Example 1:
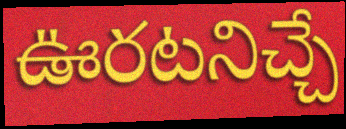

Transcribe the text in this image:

ఊరటనిచ్చే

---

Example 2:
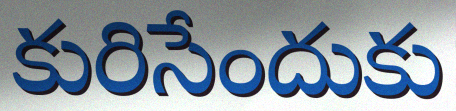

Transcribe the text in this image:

కురిసేందుకు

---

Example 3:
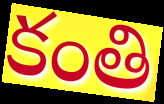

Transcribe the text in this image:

కంతి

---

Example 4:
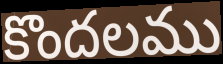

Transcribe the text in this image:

కొందలము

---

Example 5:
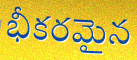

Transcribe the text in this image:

భీకరమైన